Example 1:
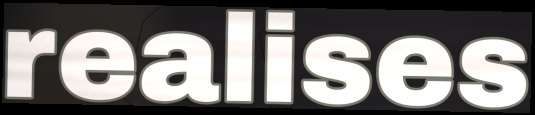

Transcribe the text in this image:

realises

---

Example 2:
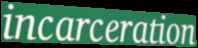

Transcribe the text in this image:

incarceration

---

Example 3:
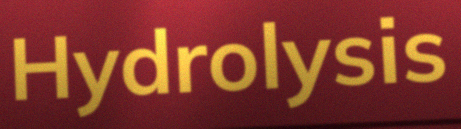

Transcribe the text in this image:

Hydrolysis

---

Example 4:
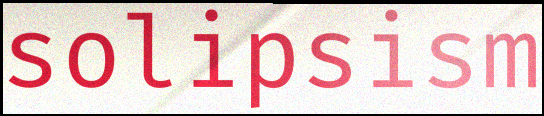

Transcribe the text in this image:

solipsism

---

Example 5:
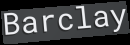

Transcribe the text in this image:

Barclay